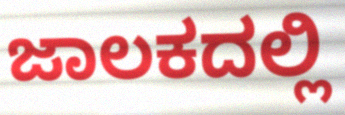
ಜಾಲಕದಲ್ಲಿ